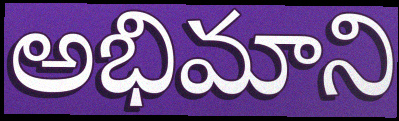
అభిమాని